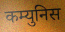
कम्युनिस